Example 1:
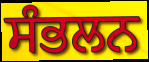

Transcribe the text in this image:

ਸੰਭਲਨ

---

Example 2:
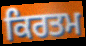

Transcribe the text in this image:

ਕਿਰਤਮ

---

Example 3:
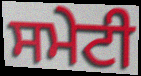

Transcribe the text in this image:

ਸਮੇਟੀ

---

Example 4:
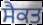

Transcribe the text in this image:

ਸੈਕਤ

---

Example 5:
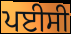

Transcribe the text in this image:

ਪਈਸੀ